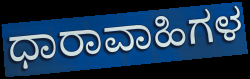
ಧಾರಾವಾಹಿಗಳ